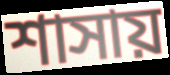
শাসায়